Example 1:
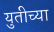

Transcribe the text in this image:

युतीच्या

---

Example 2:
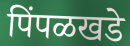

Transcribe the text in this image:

पिंपळखडे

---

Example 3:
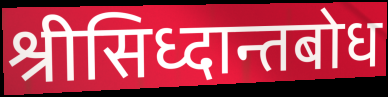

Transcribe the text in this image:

श्रीसिध्दान्तबोध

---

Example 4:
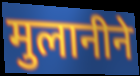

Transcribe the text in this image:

मुलानीने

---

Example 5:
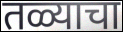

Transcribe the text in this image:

तळ्याचा